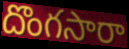
దొంగసారా